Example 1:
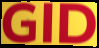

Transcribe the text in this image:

GID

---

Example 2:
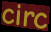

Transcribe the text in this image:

circ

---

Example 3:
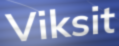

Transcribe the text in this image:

Viksit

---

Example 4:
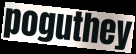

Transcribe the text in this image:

poguthey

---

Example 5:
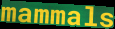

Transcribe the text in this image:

mammals